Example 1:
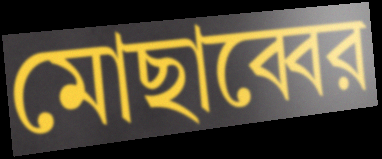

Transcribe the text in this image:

মোছাব্বের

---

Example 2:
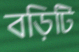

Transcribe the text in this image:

বড়িটি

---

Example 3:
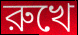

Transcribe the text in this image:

রুখে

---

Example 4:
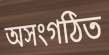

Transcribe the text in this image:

অসংগঠিত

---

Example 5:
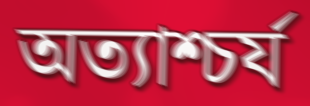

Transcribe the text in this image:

অত্যাশ্চর্য